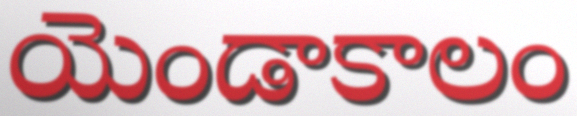
యెండాకాలం